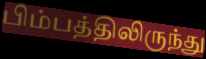
பிம்பத்திலிருந்து